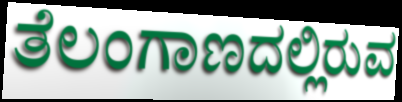
ತೆಲಂಗಾಣದಲ್ಲಿರುವ